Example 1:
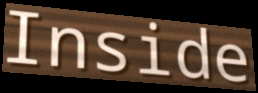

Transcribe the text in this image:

Inside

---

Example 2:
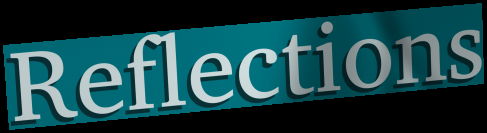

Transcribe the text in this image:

Reflections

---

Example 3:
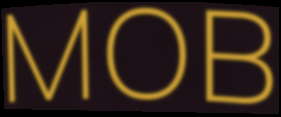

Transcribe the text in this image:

MOB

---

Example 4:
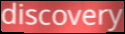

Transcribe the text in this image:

discovery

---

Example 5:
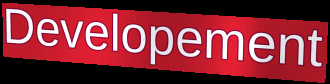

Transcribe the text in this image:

Developement